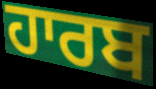
ਹਾਰਬ